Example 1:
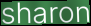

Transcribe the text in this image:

sharon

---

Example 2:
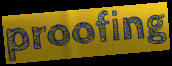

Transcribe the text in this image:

proofing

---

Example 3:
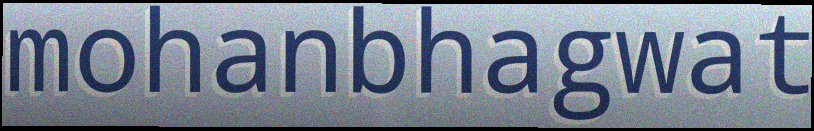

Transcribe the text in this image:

mohanbhagwat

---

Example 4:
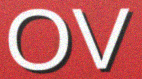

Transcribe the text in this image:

OV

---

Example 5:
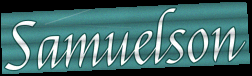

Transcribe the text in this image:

Samuelson